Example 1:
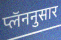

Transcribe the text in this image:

प्लॅननुसार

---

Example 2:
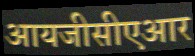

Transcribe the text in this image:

आयजीसीएआर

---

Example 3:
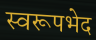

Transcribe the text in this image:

स्वरूपभेद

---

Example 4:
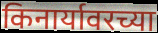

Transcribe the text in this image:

किनार्यावरच्या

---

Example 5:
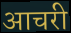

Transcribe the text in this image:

आचरी